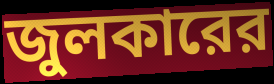
জুলকারের